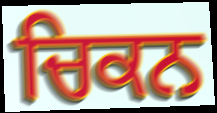
ਚਿਕਨ